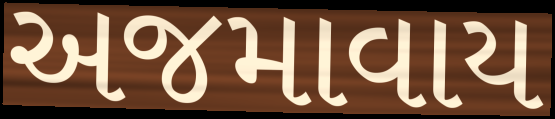
અજમાવાય